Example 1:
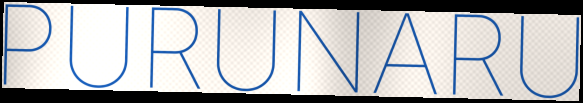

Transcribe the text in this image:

PURUNARU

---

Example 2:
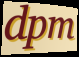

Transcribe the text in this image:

dpm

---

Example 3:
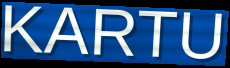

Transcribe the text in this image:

KARTU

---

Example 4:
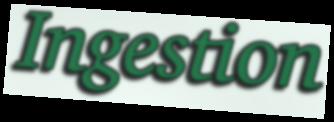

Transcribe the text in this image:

Ingestion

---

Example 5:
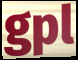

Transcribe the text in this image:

gpl